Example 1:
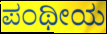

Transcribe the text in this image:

ಪಂಥೀಯ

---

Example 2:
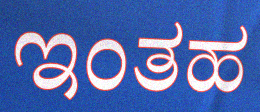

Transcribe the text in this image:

ಇಂತಹ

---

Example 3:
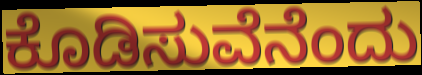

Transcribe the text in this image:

ಕೊಡಿಸುವೆನೆಂದು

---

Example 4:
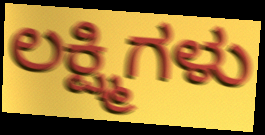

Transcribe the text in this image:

ಲಕ್ಷ್ಮಿಗಳು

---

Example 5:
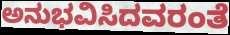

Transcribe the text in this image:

ಅನುಭವಿಸಿದವರಂತೆ